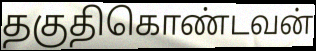
தகுதிகொண்டவன்